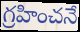
గ్రహించనే